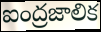
ఐంద్రజాలిక